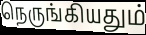
நெருங்கியதும்